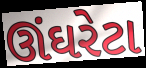
ઊંઘરેટા